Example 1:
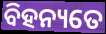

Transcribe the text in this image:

ବିହନ୍ୟତେ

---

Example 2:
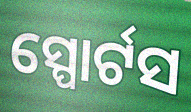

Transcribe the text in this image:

ସ୍ପୋର୍ଟସ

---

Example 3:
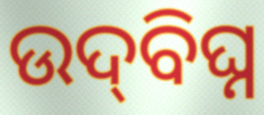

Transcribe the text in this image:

ଉଦ୍‌ବିଘ୍ନ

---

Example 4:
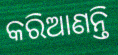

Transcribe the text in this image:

କରିଆଣନ୍ତି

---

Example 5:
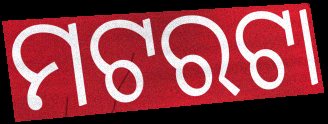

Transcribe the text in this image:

ମଟରଟା